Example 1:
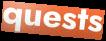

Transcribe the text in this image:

quests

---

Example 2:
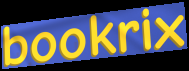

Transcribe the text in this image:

bookrix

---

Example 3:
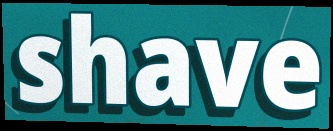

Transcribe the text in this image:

shave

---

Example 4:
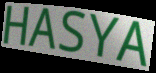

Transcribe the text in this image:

HASYA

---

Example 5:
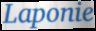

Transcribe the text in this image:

Laponie